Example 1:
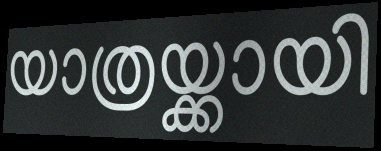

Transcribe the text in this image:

യാത്രയ്ക്കായി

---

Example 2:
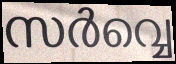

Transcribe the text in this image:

സർവ്വെ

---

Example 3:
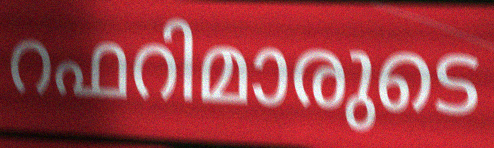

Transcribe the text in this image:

റഫറിമാരുടെ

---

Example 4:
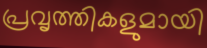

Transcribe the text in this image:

പ്രവൃത്തികളുമായി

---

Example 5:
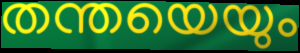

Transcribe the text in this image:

തന്തയെയും